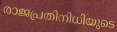
രാജപ്രതിനിധിയുടെ